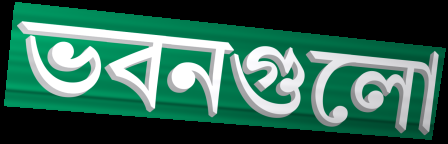
ভবনগুলো